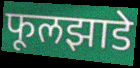
फूलझाडे